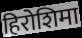
हिरोशिमा